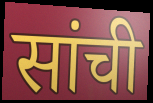
सांची